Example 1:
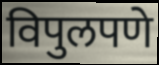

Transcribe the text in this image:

विपुलपणे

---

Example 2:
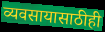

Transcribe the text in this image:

व्यवसायासाठीही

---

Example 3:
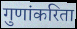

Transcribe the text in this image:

गुणांकरिता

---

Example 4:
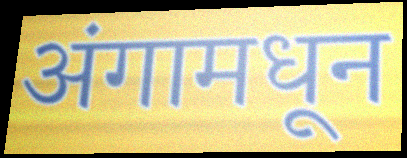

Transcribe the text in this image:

अंगामधून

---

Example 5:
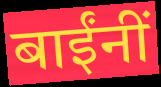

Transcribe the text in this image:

बाईंनीं